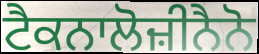
ਟੈਕਨਾਲੋਜ਼ੀਨੈਨੋ